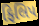
ફિલિપ